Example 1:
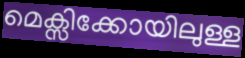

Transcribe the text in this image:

മെക്സിക്കോയിലുള്ള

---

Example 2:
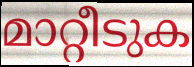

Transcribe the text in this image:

മാറ്റീടുക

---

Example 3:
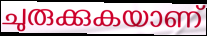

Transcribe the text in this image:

ചുരുക്കുകയാണ്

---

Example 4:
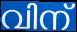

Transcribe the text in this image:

വിന്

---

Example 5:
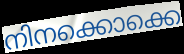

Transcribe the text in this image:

നിനക്കൊക്കെ